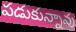
పడుకున్నావు